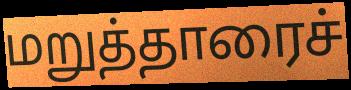
மறுத்தாரைச்